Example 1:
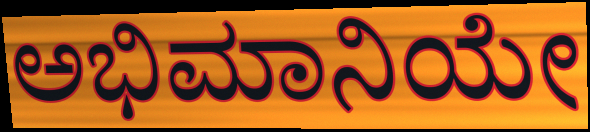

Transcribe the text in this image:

ಅಭಿಮಾನಿಯೇ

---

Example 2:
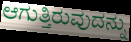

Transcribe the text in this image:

ಆಗುತ್ತಿರುವುದನ್ನು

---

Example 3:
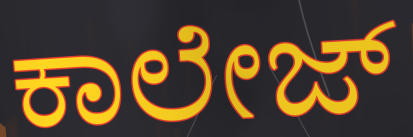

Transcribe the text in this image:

ಕಾಲೇಜ್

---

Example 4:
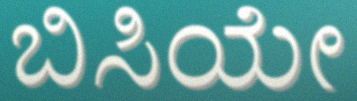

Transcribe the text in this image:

ಬಿಸಿಯೇ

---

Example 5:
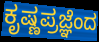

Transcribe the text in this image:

ಕೃಷ್ಣಪ್ರಜ್ಞೆಂದ